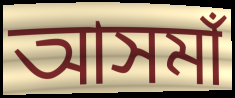
আসমাঁ